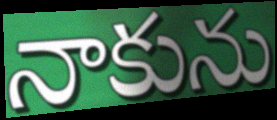
నాకును